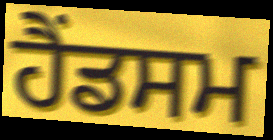
ਹੈਂਡਸਮ